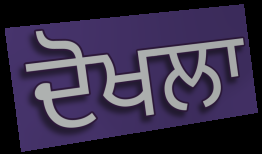
ਦੋਖਲਾ